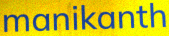
manikanth